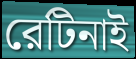
রেটিনাই